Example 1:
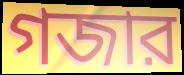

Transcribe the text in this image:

গজার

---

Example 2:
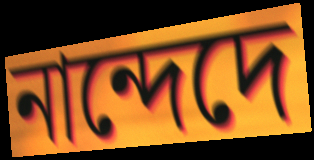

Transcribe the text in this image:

নান্দেদে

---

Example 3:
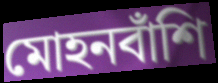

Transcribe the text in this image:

মোহনবাঁশি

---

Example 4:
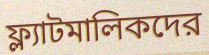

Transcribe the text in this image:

ফ্ল্যাটমালিকদের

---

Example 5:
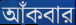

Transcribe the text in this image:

আঁকবার